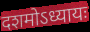
दशमोऽध्यायः